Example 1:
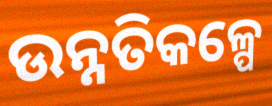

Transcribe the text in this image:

ଉନ୍ନତିକଳ୍ପେ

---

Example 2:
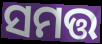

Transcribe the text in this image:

ସମତ୍ତ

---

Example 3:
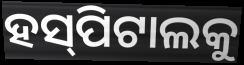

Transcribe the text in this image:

ହସ୍‌ପିଟାଲକୁ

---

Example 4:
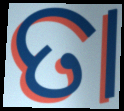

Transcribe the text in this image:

ତା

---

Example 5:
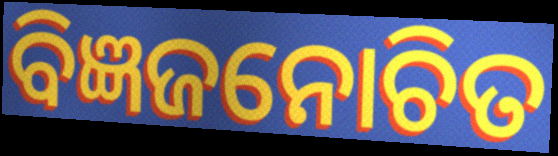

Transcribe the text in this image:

ବିଜ୍ଞଜନୋଚିତ